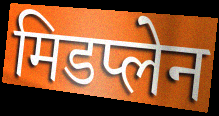
मिडप्लेन